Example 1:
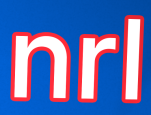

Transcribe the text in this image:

nrl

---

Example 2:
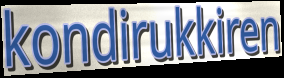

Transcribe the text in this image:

kondirukkiren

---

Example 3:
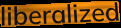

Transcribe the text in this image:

liberalized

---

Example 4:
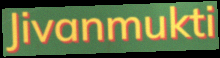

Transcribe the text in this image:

Jivanmukti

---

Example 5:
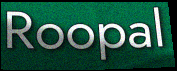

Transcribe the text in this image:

Roopal